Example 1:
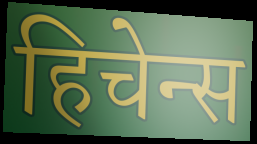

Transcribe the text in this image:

हिचेन्स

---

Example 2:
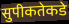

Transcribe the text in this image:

सुपीकतेकडे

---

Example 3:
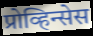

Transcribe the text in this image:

प्रोव्हिन्सेस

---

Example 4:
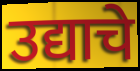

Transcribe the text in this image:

उद्याचे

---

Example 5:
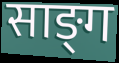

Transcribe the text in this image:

साङ्ग